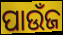
ପାଉଁଜ